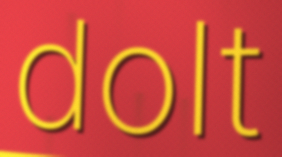
dolt